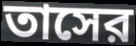
তাসের